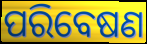
ପରିବେଷଣ